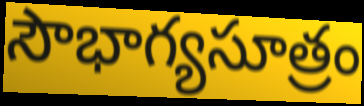
సౌభాగ్యసూత్రం